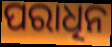
ପରାଧିନ